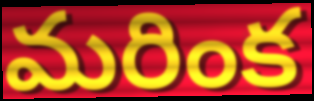
మరింక